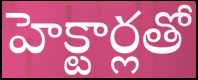
హెక్టార్లతో